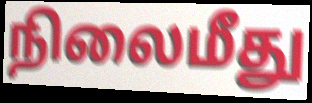
நிலைமீது